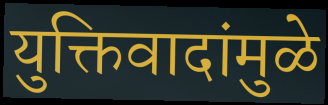
युक्तिवादांमुळे